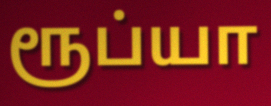
ரூப்யா